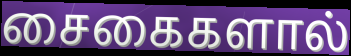
சைகைகளால்